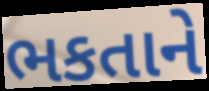
ભકતાને